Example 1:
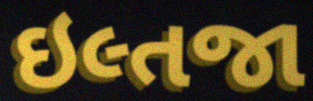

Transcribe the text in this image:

ઇલ્તજા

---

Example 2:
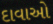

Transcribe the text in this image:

દાવાઓ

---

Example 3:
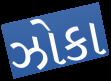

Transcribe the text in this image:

ઝોકા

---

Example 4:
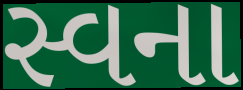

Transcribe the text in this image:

સ્વના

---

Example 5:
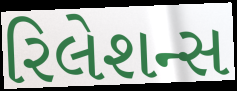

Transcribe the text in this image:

રિલેશન્સ